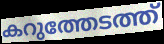
കറുത്തേടത്ത്